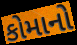
કોમાનો